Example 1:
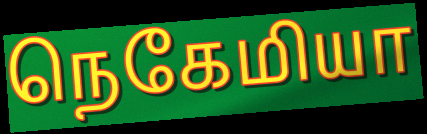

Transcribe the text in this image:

நெகேமியா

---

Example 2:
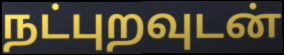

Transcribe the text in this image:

நட்புறவுடன்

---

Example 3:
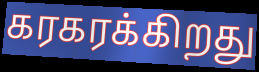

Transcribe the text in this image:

கரகரக்கிறது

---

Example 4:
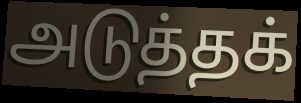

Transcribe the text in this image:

அடுத்தக்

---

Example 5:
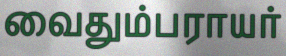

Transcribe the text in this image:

வைதும்பராயர்